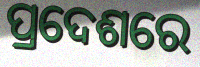
ପ୍ରଦେଶରେ